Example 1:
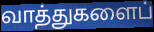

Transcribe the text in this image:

வாத்துகளைப்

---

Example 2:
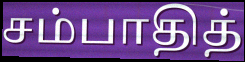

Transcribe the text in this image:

சம்பாதித்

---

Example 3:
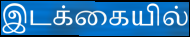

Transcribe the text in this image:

இடக்கையில்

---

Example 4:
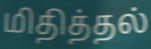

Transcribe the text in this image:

மிதித்தல்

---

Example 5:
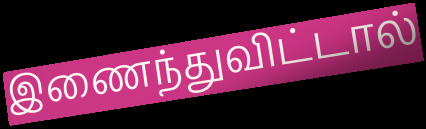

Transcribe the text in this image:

இணைந்துவிட்டால்